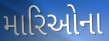
મારિઓના